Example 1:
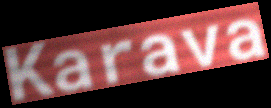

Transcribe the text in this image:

Karava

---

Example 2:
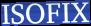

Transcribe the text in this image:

ISOFIX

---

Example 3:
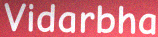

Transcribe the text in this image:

Vidarbha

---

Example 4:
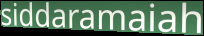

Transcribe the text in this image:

siddaramaiah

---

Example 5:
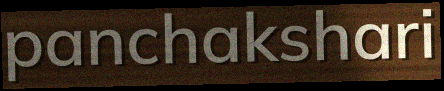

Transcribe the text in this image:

panchakshari